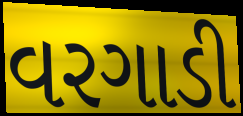
વરગાડી